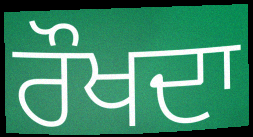
ਰੌਖਦਾ